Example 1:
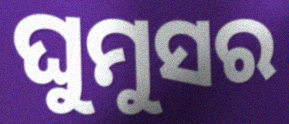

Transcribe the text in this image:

ଘୁମୁସର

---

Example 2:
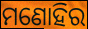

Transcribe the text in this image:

ମଣୋହିର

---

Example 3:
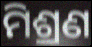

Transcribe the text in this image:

ମିଶ୍ରଣ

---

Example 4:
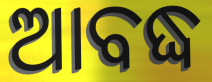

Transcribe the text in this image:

ଆବଦ୍ଧ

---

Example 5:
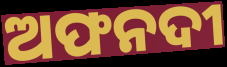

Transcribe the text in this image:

ଅଫନଦୀ